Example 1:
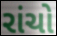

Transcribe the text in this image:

રાંચો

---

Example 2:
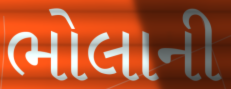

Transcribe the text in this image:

ભોલાની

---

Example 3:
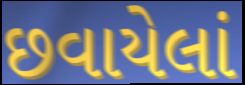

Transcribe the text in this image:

છવાયેલાં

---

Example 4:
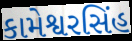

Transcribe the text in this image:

કામેશ્વરસિંહ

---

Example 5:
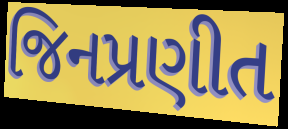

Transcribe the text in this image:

જિનપ્રણીત